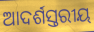
ଆଦର୍ଶସ୍ତରୀୟ